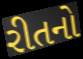
રીતનો